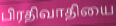
பிரதிவாதியை